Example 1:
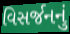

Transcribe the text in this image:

વિસર્જનનું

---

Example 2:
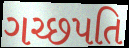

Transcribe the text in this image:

ગચ્છપતિ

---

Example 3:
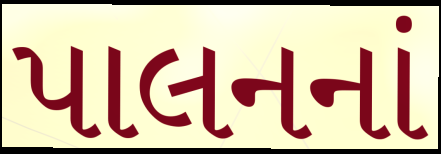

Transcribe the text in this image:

પાલનનાં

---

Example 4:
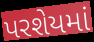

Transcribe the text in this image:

પરશેયમાં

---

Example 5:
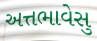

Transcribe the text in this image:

અત્તભાવેસુ